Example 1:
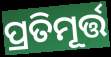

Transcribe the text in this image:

ପ୍ରତିମୂର୍ତ୍ତ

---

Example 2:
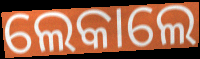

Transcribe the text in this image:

ଲେକାଲେ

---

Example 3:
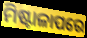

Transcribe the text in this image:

ମିଷ୍ଟାଳାପରେ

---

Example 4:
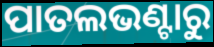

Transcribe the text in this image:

ପାତଲଭଣ୍ଟାରୁ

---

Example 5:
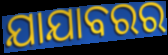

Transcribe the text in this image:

ଯାଯାବରର